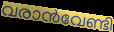
വരാൻവേണ്ടി